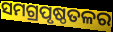
ସମଗ୍ରପୃଷ୍ଠତଳର